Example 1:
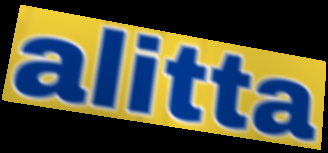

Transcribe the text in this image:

alitta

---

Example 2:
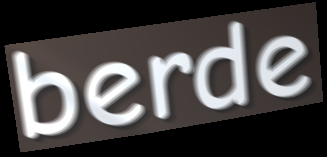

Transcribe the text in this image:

berde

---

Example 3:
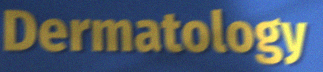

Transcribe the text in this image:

Dermatology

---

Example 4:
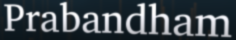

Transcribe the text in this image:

Prabandham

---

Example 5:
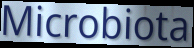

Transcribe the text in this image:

Microbiota